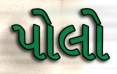
પોલો